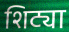
शिट्या